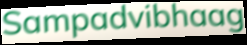
Sampadvibhaag